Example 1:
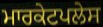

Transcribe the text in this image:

ਮਾਰਕੇਟਪਲੇਸ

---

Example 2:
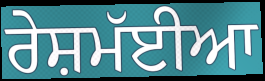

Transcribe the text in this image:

ਰੇਸ਼ਮੱਈਆ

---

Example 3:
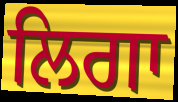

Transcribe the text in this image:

ਲਿਗਾ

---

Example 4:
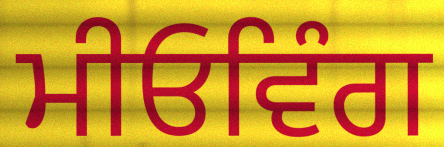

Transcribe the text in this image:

ਮੀਓਵਿੰਗ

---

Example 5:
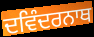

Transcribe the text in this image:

ਦਵਿੰਦਰਨਾਥ